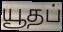
யூதப்